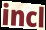
incl